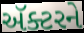
ઍક્ટરને